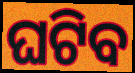
ଘଟିବ